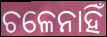
ଚଳେନାହିଁ